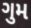
ગુમ